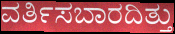
ವರ್ತಿಸಬಾರದಿತ್ತು